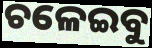
ଚଳେଇବୁ